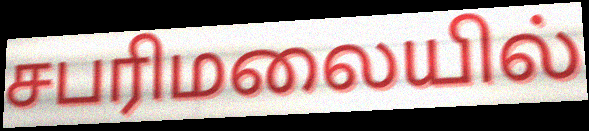
சபரிமலையில்